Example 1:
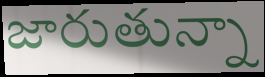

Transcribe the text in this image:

జారుతున్నా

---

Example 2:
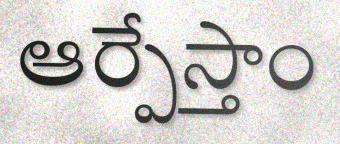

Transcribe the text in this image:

ఆర్పేస్తాం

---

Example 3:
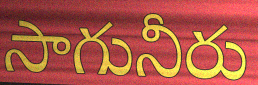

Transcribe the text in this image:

సాగునీరు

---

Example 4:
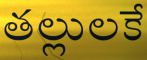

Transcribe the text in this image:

తల్లులకే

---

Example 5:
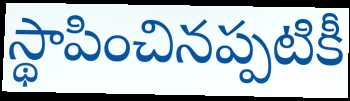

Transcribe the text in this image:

స్థాపించినప్పటికీ